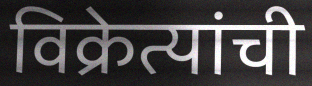
विक्रेत्यांची